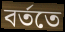
বর্ততে